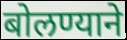
बोलण्याने